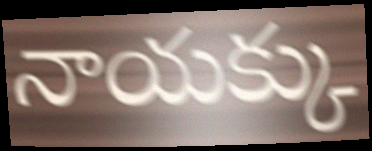
నాయక్కు